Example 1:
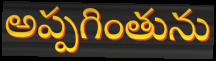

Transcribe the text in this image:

అప్పగింతును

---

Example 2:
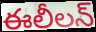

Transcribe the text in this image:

ఈలీలన్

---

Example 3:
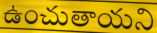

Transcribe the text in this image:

ఉంచుతాయని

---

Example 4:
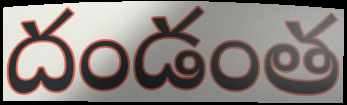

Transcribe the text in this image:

దండంత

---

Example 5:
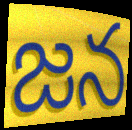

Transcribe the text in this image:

జన